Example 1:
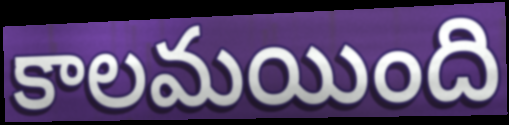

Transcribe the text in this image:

కాలమయింది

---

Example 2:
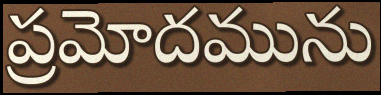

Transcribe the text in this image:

ప్రమోదమును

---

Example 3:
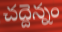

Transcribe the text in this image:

చద్దెన్నం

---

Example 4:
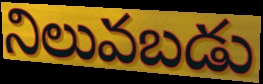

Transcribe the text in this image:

నిలువబడు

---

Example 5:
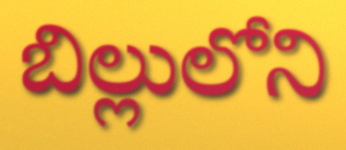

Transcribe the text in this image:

బిల్లులోని